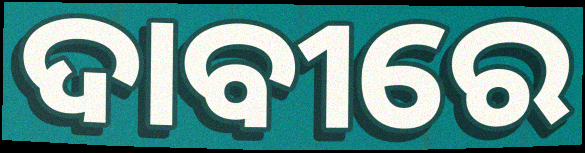
ଦାବୀରେ